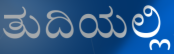
ತುದಿಯಲ್ಲಿ